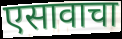
एसावाचा